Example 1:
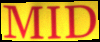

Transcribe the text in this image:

MID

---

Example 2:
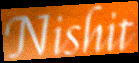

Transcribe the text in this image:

Nishit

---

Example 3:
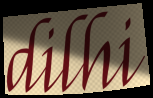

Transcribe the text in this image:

dilhi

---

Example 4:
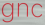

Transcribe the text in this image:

gnc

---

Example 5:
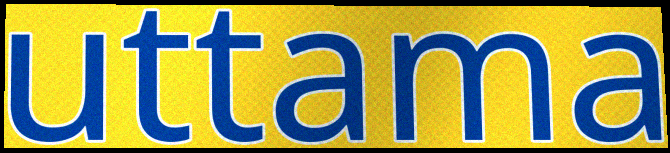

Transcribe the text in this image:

uttama